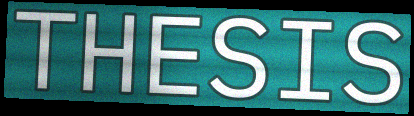
THESIS